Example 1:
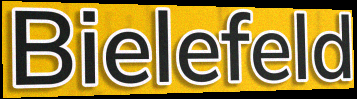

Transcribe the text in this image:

Bielefeld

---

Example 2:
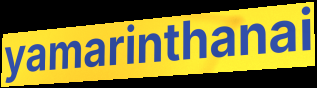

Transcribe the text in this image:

yamarinthanai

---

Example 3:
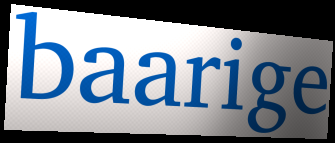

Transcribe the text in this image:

baarige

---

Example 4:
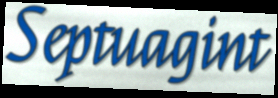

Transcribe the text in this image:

Septuagint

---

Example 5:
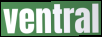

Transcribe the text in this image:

ventral